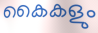
കൈകളും